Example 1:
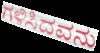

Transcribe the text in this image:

ಗಳಿಸಿದವನು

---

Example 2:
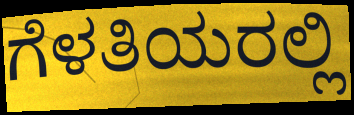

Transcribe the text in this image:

ಗೆಳತಿಯರಲ್ಲಿ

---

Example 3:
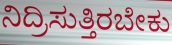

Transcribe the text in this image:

ನಿದ್ರಿಸುತ್ತಿರಬೇಕು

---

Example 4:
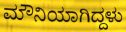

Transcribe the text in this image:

ಮೌನಿಯಾಗಿದ್ದಳು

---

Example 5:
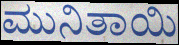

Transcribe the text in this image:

ಮುನಿತಾಯಿ